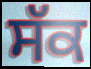
ਸੱਕ